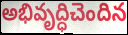
అభివృద్ధిచెందిన